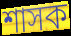
শাসক